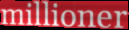
millioner